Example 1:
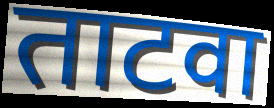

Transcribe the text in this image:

ताटवा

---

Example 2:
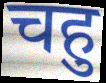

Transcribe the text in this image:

चहु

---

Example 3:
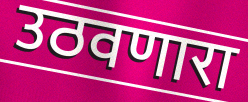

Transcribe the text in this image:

उठवणारा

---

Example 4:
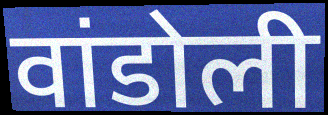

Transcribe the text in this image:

वांडोली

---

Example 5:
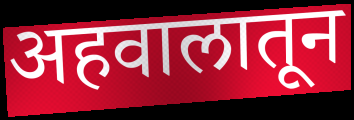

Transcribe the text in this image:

अहवालातून